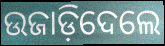
ଉଜାଡ଼ିଦେଲେ